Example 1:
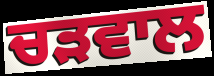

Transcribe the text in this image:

ਚੜਵਾਲ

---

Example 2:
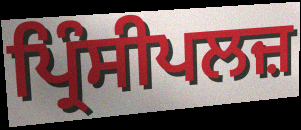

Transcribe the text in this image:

ਪ੍ਰਿੰਸੀਪਲਜ਼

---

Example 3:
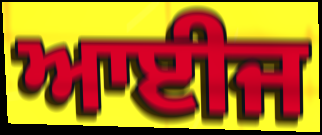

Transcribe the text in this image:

ਆਈਜ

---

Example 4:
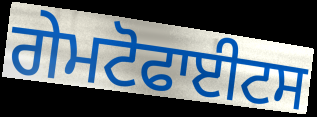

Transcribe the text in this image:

ਗੇਮਟੋਫਾਈਟਸ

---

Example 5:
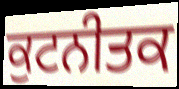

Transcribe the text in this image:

ਕੁਟਨੀਤਕ